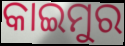
କାଇମୁର